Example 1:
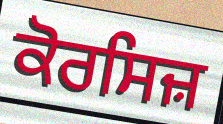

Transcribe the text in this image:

ਕੋਰਸਿਜ਼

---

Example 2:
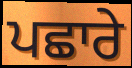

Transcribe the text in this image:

ਪਛਾਰੇ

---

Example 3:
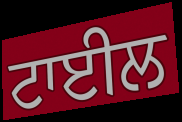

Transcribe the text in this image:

ਟਾਈਲ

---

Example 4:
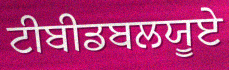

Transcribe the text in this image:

ਟੀਬੀਡਬਲਯੂਏ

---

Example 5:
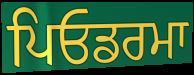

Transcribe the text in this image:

ਪਿਓਡਰਮਾ